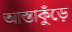
আস্তাকুঁড়ে